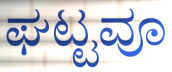
ಘಟ್ಟವೂ